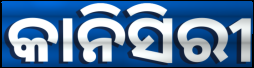
କାନିସିରୀ